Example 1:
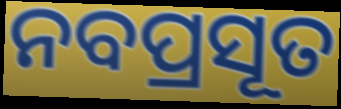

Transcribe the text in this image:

ନବପ୍ରସୂତ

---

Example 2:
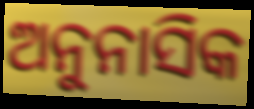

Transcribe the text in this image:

ଅନୁନାସିକ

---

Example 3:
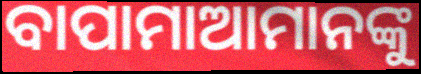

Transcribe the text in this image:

ବାପାମାଆମାନଙ୍କୁ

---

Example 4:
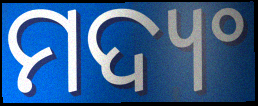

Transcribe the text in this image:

ମଦ୍ୟଂ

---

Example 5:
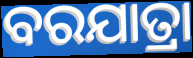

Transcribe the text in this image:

ବରଯାତ୍ରା